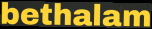
bethalam